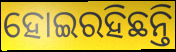
ହୋଇରହିଛନ୍ତି